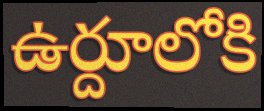
ఉర్దూలోకి